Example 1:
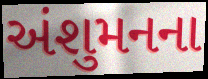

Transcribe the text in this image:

અંશુમનના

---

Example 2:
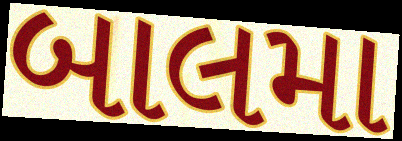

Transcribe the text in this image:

બાલમા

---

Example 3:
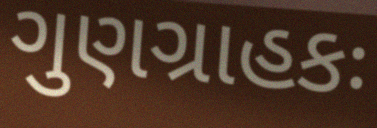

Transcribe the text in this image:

ગુણગ્રાહકઃ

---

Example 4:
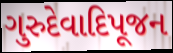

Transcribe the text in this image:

ગુરુદેવાદિપૂજન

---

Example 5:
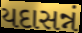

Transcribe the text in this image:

યદાસન્નં